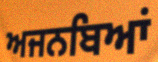
ਅਜਨਬਿਆਂ